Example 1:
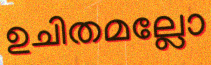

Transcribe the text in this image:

ഉചിതമല്ലോ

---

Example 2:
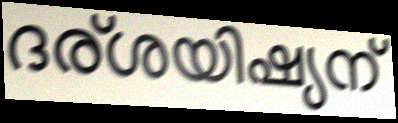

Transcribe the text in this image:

ദര്ശയിഷ്യന്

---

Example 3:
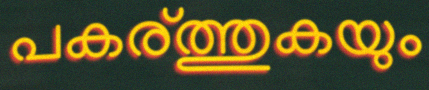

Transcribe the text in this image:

പകര്ത്തുകയും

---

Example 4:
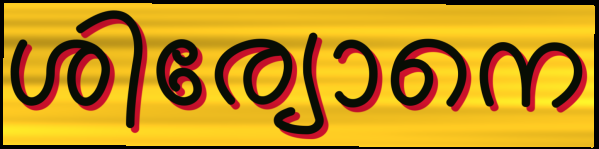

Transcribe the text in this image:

ശിര്യോനെ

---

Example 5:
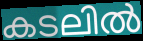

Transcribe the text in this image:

കടലിൽ